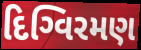
દિગ્વિરમણ